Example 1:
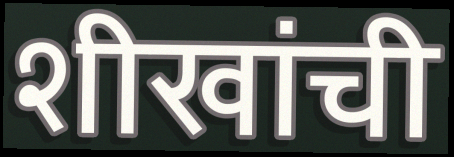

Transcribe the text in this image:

शीखांची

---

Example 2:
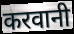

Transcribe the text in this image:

करवानी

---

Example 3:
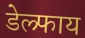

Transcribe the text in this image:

डेल्फाय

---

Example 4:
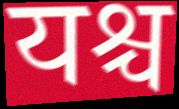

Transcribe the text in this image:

यश्च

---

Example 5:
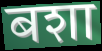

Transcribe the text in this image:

बशा